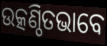
ଉତ୍କଣ୍ଠିତଭାବେ